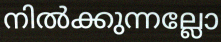
നിൽക്കുന്നല്ലോ